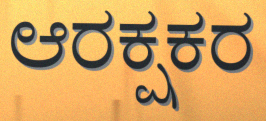
ಆರಕ್ಷಕರ